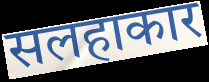
सलहाकार